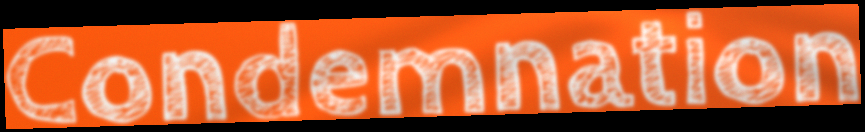
Condemnation